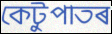
কেটুপাতৰ